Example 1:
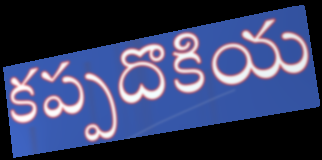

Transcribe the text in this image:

కప్పదొకియ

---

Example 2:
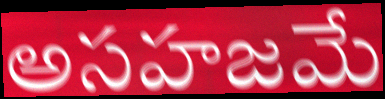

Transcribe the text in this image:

అసహజమే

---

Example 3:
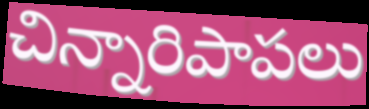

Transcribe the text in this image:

చిన్నారిపాపలు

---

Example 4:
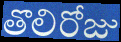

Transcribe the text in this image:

తొలిరోజు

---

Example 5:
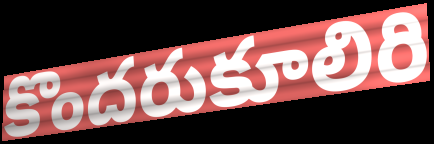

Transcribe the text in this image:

కొందరుకూలిరి